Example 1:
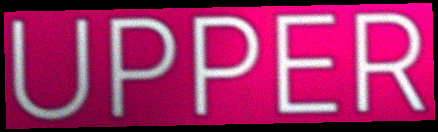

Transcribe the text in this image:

UPPER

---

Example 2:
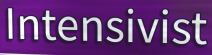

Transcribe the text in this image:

Intensivist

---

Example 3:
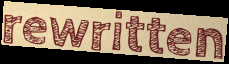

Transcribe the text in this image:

rewritten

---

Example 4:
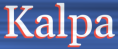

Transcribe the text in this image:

Kalpa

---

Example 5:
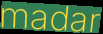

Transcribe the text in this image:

madar